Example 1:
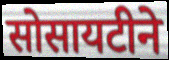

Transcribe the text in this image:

सोसायटीने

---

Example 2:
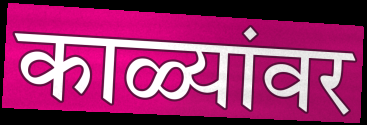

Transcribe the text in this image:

काळ्यांवर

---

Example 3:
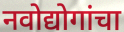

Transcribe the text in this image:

नवोद्योगांचा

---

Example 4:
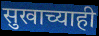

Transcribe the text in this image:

सुखाच्याही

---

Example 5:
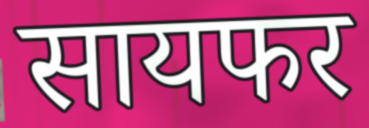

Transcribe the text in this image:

सायफर